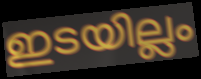
ഇടയില്ലം